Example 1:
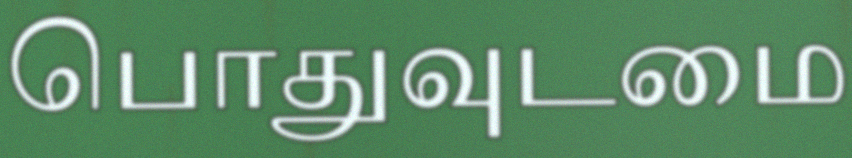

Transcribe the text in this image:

பொதுவுடமை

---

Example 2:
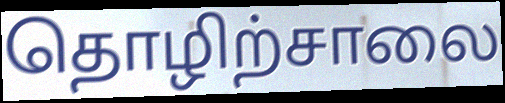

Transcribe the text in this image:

தொழிற்சாலை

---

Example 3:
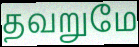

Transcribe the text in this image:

தவறுமே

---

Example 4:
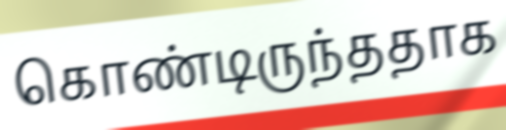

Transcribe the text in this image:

கொண்டிருந்ததாக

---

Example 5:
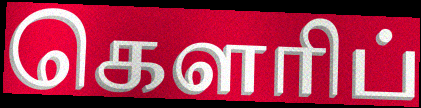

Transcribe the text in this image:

கௌரிப்